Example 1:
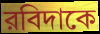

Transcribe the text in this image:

রবিদাকে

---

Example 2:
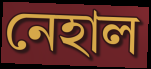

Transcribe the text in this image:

নেহাল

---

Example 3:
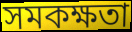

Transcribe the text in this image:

সমকক্ষতা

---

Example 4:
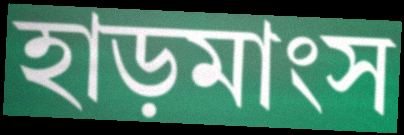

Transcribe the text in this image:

হাড়মাংস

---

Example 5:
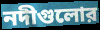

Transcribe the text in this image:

নদীগুলোর